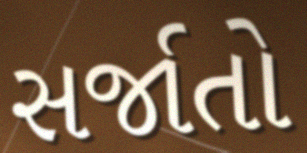
સર્જાતો